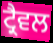
ਟ੍ਰੈਵਲ